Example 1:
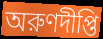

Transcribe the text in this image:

অরুণদীপ্তি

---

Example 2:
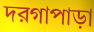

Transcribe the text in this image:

দরগাপাড়া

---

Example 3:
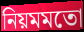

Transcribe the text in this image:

নিয়মমতো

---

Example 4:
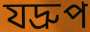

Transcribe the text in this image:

যদ্রুপ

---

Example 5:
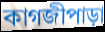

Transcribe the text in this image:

কাগজীপাড়া